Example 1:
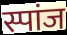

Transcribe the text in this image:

स्पांज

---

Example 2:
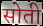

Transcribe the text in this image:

सोती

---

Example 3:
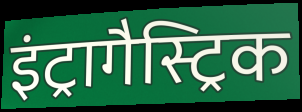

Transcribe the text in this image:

इंट्रागैस्ट्रिक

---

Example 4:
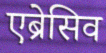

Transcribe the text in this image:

एब्रेसिव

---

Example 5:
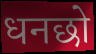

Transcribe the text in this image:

धनछो